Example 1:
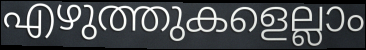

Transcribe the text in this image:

എഴുത്തുകളെല്ലാം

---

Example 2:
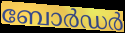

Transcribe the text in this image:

ബോർഡർ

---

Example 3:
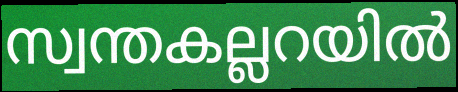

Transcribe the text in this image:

സ്വന്തകല്ലറയിൽ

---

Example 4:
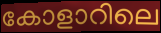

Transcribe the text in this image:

കോളാറിലെ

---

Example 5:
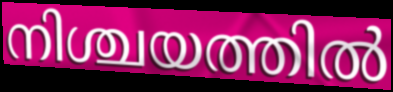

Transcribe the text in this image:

നിശ്ചയത്തിൽ